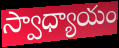
స్వాధ్యాయం